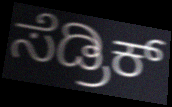
ಸೆಡ್ರಿಕ್